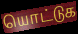
யொட்டுக